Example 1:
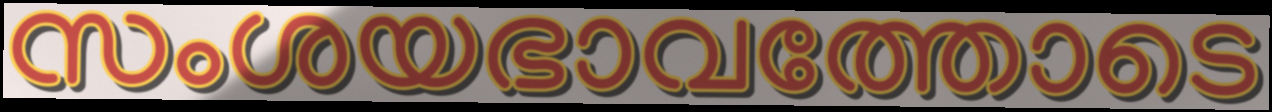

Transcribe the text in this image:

സംശയഭാവത്തോടെ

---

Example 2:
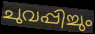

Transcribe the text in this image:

ചുവപ്പിച്ചും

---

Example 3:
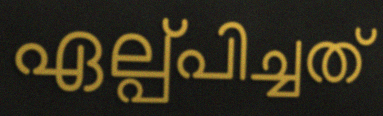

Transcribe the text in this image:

ഏല്പ്പിച്ചത്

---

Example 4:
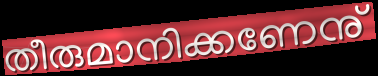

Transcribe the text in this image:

തീരുമാനിക്കണേനു്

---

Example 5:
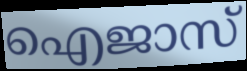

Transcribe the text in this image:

ഐജാസ്